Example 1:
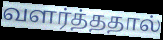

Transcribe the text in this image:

வளர்த்ததால்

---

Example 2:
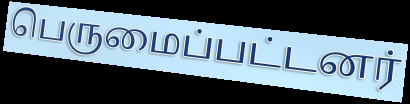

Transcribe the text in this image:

பெருமைப்பட்டனர்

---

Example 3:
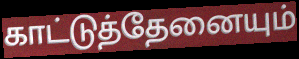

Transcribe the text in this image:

காட்டுத்தேனையும்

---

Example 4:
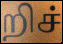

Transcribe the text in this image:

றிச்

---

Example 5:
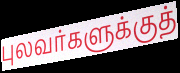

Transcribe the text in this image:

புலவர்களுக்குத்